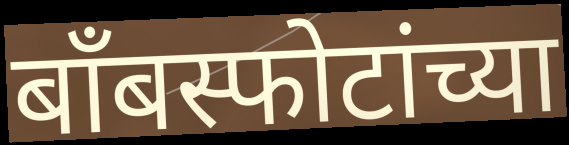
बॉंबस्फोटांच्या